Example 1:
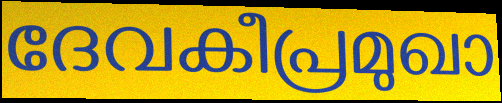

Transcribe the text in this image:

ദേവകീപ്രമുഖാ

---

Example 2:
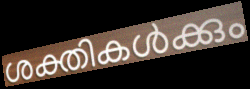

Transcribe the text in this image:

ശക്തികൾക്കും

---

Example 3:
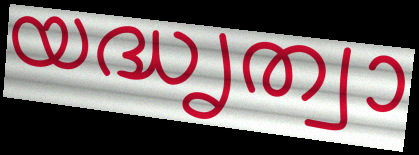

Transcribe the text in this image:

യദ്ധൃത്വാ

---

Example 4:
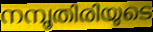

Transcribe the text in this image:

നമ്പൂതിരിയുടെ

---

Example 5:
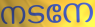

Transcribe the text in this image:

നടനേ